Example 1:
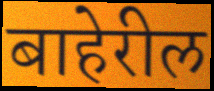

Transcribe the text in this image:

बाहेरील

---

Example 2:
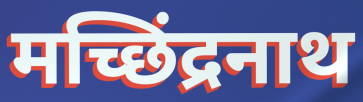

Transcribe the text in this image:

मच्छिंद्रनाथ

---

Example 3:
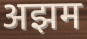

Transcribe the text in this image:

अझम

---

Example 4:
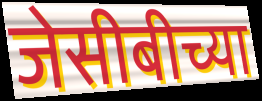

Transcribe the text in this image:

जेसीबीच्या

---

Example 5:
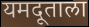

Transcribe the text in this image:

यमदूताला